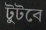
টুটবে